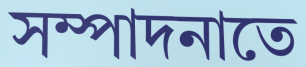
সম্পাদনাতে